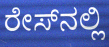
ರೇಸ್‍ನಲ್ಲಿ